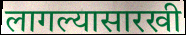
लागल्यासारखी